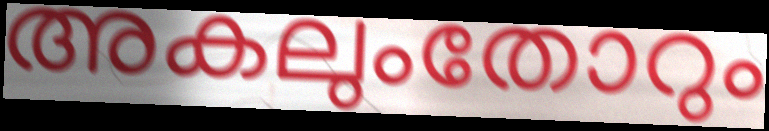
അകലുംതോറും